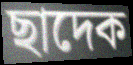
ছাদেক